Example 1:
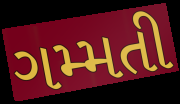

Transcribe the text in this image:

ગમ્મતી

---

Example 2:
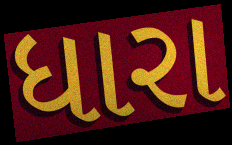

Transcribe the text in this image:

ધારા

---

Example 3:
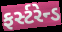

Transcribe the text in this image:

ફર્સ્ટરેન્ડ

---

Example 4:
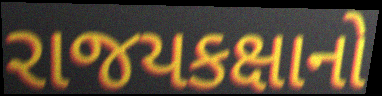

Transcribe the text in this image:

રાજયકક્ષાનો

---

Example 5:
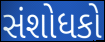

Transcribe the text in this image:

સંશોધકો